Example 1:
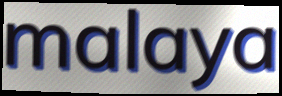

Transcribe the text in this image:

malaya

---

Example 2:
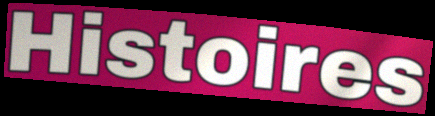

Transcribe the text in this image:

Histoires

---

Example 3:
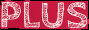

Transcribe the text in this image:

PLUS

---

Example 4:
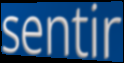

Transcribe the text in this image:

sentir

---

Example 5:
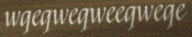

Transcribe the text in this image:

wqeqweqweeqweqe